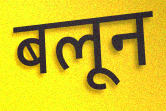
बलून